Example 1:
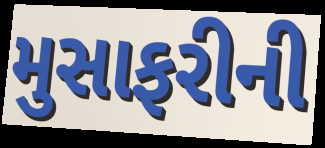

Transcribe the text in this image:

મુસાફરીની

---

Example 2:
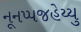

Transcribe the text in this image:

નૂનપ્પજહેય્યુ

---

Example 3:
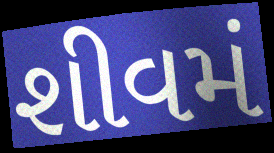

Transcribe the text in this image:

શીવમં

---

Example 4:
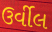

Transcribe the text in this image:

ઉર્વીલ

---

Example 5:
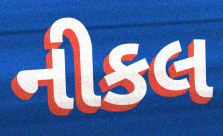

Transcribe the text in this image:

નીકલ